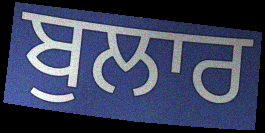
ਬੁਲਾਰ